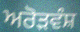
ਅਰੋੜਵੰਸ਼